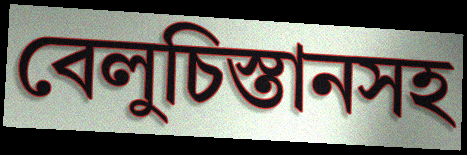
বেলুচিস্তানসহ